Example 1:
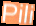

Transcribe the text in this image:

Pili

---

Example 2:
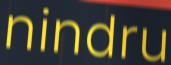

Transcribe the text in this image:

nindru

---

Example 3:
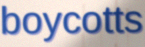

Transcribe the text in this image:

boycotts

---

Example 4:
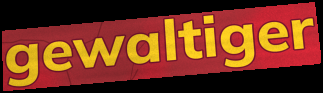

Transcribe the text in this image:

gewaltiger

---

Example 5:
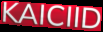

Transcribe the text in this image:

KAICIID